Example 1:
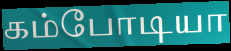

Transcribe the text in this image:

கம்போடியா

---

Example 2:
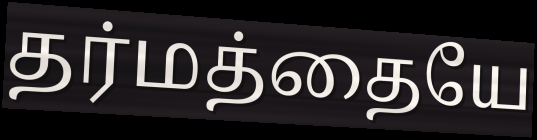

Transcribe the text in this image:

தர்மத்தையே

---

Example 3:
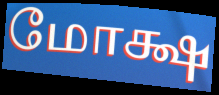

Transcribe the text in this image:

மோக்ஷ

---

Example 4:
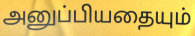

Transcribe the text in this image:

அனுப்பியதையும்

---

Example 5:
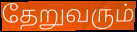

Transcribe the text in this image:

தேறுவரும்